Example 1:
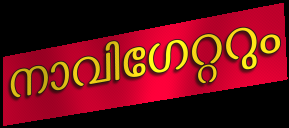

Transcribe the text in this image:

നാവിഗേറ്ററും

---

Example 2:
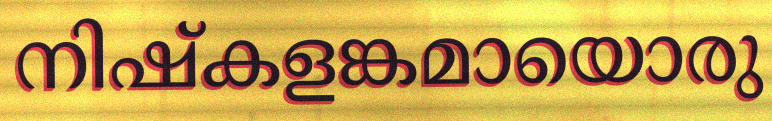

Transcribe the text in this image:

നിഷ്കളങ്കമായൊരു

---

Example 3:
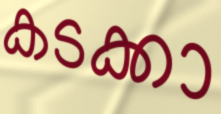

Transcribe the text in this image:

കടക്കാ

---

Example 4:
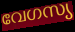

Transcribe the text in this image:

വേഗസ്യ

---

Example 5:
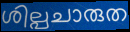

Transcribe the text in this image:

ശില്പചാരുത